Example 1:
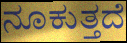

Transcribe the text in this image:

ನೂಕುತ್ತದೆ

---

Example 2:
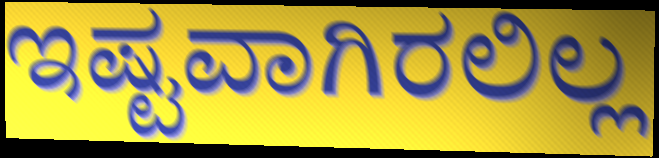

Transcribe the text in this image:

ಇಷ್ಟವಾಗಿರಲಿಲ್ಲ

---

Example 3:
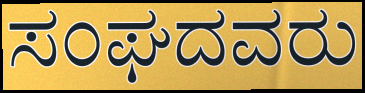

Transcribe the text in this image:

ಸಂಘದವರು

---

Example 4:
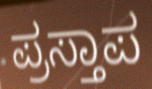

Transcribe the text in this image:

ಪ್ರಸ್ತಾಪ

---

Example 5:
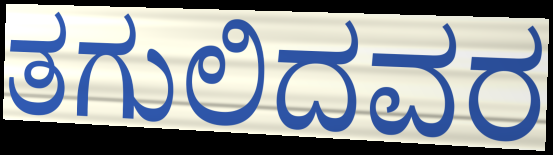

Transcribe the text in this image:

ತಗುಲಿದವರ